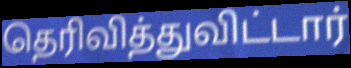
தெரிவித்துவிட்டார்